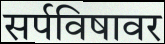
सर्पविषावर